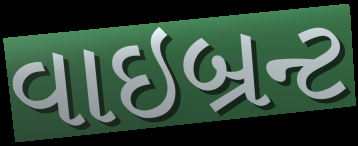
વાઇબ્રન્ટ